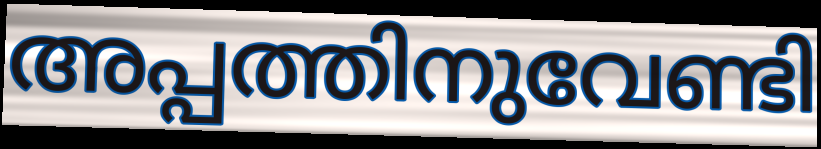
അപ്പത്തിനുവേണ്ടി